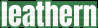
leathern